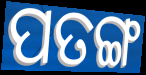
ପତଙ୍ଗ